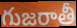
గుజరాతీ